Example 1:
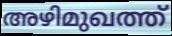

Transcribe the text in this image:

അഴിമുഖത്ത്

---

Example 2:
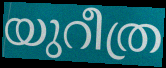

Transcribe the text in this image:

യുറീത്ര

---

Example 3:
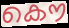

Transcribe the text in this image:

കൌ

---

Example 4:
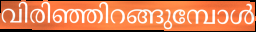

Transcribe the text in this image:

വിരിഞ്ഞിറങ്ങുമ്പോൾ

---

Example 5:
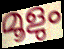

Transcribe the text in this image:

മൂളും